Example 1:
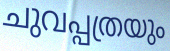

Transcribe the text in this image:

ചുവപ്പത്രയും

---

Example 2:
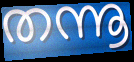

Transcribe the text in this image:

തന്നൂ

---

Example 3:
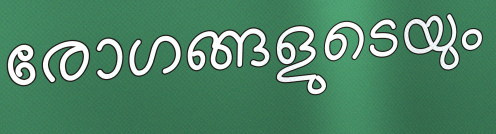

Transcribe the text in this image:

രോഗങ്ങളുടെയും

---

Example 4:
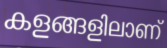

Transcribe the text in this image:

കളങ്ങളിലാണ്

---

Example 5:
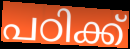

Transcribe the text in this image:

പഠിക്ക്